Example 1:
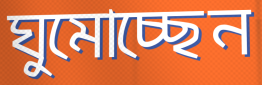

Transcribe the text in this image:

ঘুমোচ্ছেন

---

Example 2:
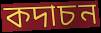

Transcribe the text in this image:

কদাচন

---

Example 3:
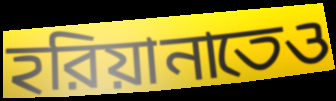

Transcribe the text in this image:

হরিয়ানাতেও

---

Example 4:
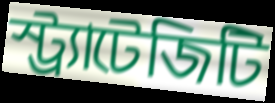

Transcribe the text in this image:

স্ট্র্যাটেজিটি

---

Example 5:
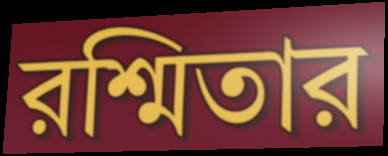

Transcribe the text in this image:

রশ্মিতার